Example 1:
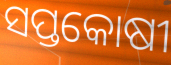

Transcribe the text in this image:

ସପ୍ତକୋଷୀ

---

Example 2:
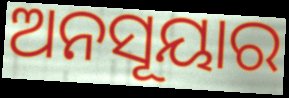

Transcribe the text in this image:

ଅନସୂୟାର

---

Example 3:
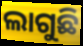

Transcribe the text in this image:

ଲାଗୁଛି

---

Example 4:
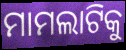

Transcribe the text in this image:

ମାମଲାଟିକୁ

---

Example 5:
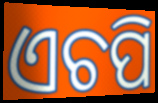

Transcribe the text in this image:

ଏଚପି